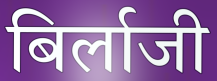
बिर्लाजी